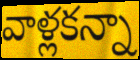
వాళ్లకన్నా